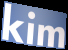
kim